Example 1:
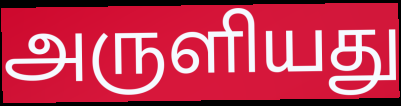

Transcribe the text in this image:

அருளியது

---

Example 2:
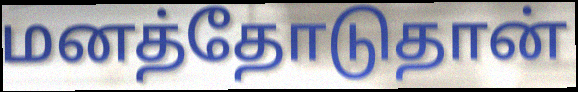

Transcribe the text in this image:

மனத்தோடுதான்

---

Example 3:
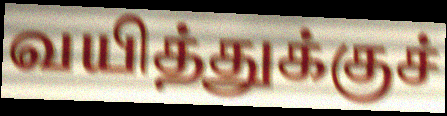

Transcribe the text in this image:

வயித்துக்குச்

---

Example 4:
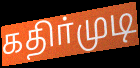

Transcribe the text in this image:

கதிர்முடி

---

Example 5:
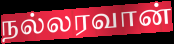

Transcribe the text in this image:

நல்லரவான்